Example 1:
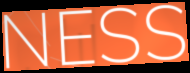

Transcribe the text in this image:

NESS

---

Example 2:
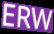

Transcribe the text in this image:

ERW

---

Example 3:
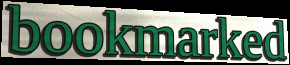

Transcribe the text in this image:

bookmarked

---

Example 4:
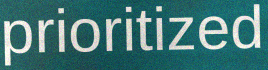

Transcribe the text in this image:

prioritized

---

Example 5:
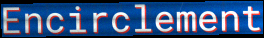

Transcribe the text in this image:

Encirclement